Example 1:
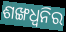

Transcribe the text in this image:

ଶଙ୍ଖଧ୍ବନିର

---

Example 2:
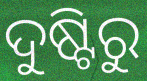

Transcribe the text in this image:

ଦୁଷ୍ଟିରୁ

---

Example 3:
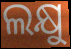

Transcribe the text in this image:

ଲକ୍ଷୁ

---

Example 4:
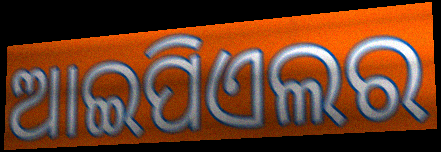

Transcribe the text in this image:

ଆଇପିଏଲର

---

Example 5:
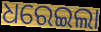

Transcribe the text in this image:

ଧରେଇଲା